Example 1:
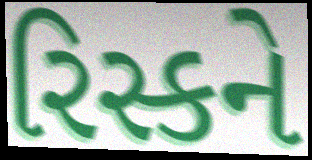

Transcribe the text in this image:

રિસ્કને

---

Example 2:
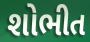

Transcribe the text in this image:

શોભીત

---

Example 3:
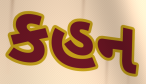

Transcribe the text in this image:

કહન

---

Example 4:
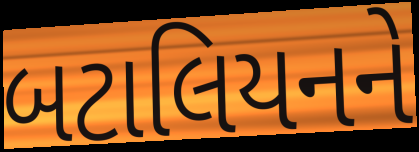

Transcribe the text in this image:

બટાલિયનને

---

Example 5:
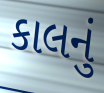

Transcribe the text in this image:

કાલનું